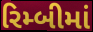
રિમ્બીમાં